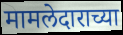
मामलेदाराच्या